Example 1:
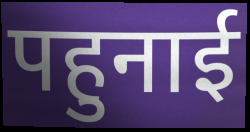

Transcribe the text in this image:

पहुनाई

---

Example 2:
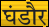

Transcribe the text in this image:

घंडौर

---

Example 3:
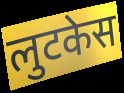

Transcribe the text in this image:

लुटकेस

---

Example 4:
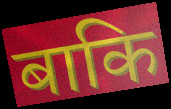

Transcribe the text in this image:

बाकि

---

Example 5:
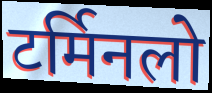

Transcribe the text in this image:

टर्मिनलो